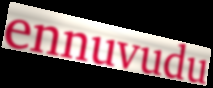
ennuvudu